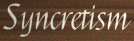
Syncretism